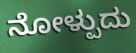
ನೋಳ್ಪುದು